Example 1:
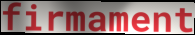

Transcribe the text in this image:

firmament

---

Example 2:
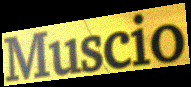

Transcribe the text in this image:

Muscio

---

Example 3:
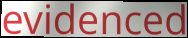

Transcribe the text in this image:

evidenced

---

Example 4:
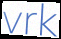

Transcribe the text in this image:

vrk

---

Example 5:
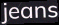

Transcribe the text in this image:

jeans